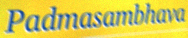
Padmasambhava